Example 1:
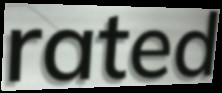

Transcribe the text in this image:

rated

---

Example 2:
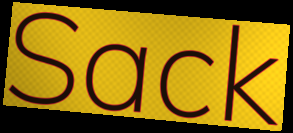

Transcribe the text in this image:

Sack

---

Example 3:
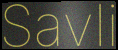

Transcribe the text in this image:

Savli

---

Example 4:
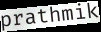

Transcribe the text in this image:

prathmik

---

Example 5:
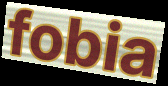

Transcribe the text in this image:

fobia